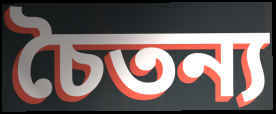
চৈতন্য